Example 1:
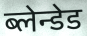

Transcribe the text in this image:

ब्लेन्डेड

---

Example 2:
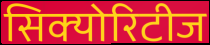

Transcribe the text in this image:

सिक्योरिटीज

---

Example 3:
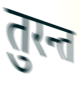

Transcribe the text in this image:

तुरन्त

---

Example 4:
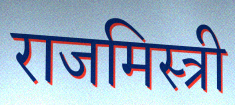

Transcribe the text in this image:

राजमिस्त्री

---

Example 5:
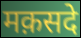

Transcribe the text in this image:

मक़सदे